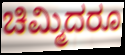
ಚಿಮ್ಮಿದರೂ